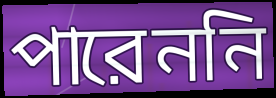
পারেননি